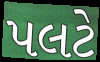
પલટે